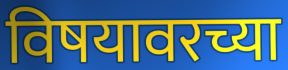
विषयावरच्या